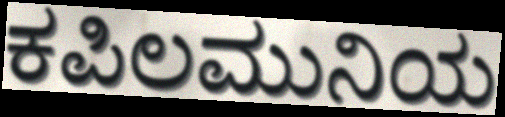
ಕಪಿಲಮುನಿಯ